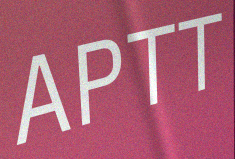
APTT